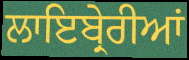
ਲਾਇਬ੍ਰੇਰੀਆਂ